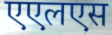
एएलएस